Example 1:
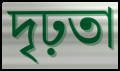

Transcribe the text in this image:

দৃঢ়তা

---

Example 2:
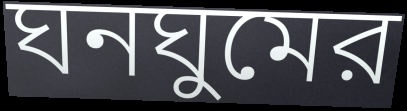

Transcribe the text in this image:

ঘনঘুমের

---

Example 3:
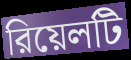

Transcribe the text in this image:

রিয়েলটি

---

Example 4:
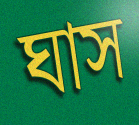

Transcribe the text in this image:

ঘাস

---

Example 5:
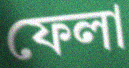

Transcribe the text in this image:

ফেলা